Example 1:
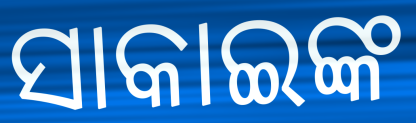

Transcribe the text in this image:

ସାକାଇଙ୍କ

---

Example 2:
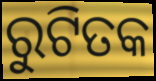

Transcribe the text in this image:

ରୁଟିତକ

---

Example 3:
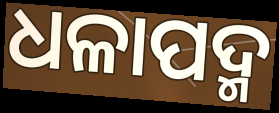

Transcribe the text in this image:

ଧଳାପଦ୍ମ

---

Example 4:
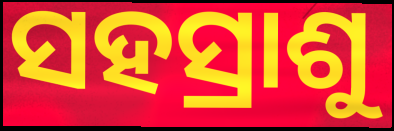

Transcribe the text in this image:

ସହସ୍ରାଶୁ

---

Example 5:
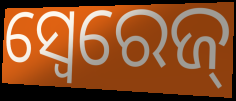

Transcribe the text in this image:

ସ୍ବେରେଜ୍